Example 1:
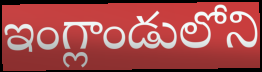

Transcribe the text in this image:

ఇంగ్లాండులోని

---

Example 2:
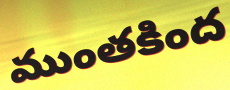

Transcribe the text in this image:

ముంతకింద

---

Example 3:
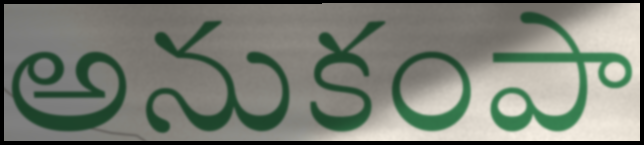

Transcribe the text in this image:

అనుకంపా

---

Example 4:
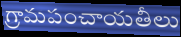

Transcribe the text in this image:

గ్రామపంచాయతీలు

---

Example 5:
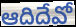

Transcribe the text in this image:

ఆదిదేవో